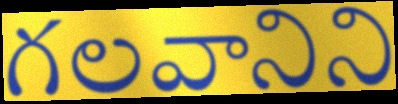
గలవానిని